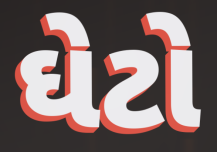
ઘેટો